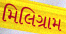
મિલિગ્રામ